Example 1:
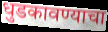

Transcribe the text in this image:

धुडकावण्याचा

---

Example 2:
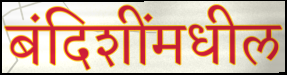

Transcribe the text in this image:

बंदिशींमधील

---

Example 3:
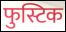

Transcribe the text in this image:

फुस्टिक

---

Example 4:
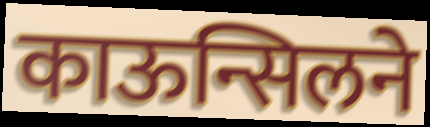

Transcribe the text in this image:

काऊन्सिलने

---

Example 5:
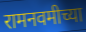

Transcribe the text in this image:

रामनवमीच्या